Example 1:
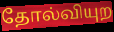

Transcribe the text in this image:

தோல்வியுற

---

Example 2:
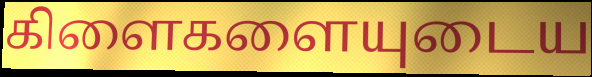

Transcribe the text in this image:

கிளைகளையுடைய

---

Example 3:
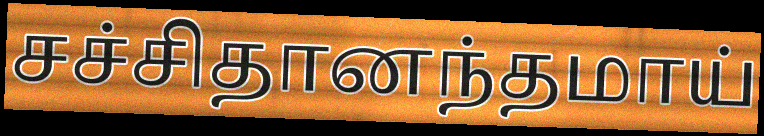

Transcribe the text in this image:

சச்சிதானந்தமாய்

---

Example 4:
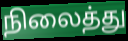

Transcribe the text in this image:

நிலைத்து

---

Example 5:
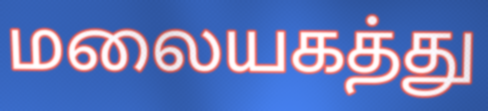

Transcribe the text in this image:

மலையகத்து